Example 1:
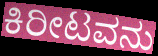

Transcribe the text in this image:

ಕಿರೀಟವನು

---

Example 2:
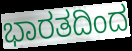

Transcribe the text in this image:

ಭಾರತದಿಂದ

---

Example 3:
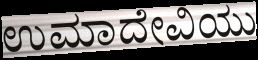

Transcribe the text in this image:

ಉಮಾದೇವಿಯು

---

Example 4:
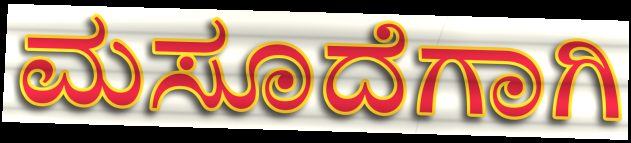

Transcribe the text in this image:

ಮಸೂದೆಗಾಗಿ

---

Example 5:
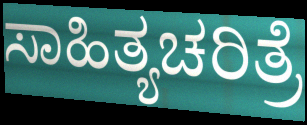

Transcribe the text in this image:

ಸಾಹಿತ್ಯಚರಿತ್ರೆ